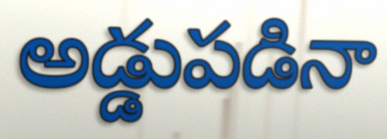
అడ్డుపడినా